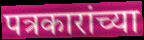
पत्रकारांच्या